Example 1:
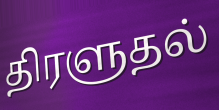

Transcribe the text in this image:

திரளுதல்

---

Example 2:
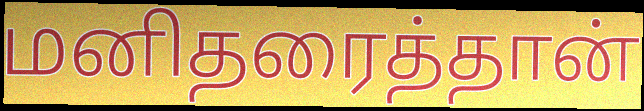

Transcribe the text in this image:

மனிதரைத்தான்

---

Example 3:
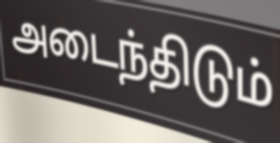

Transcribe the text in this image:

அடைந்திடும்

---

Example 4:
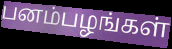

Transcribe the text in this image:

பனம்பழங்கள்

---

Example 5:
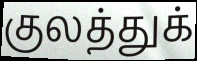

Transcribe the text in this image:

குலத்துக்